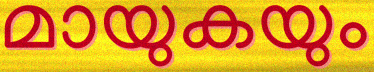
മായുകയും